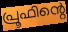
പ്രൂഫിന്റെ